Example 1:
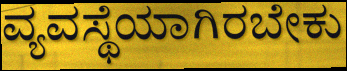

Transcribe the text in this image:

ವ್ಯವಸ್ಥೆಯಾಗಿರಬೇಕು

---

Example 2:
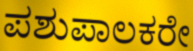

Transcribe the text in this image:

ಪಶುಪಾಲಕರೇ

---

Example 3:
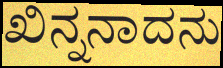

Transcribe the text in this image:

ಖಿನ್ನನಾದನು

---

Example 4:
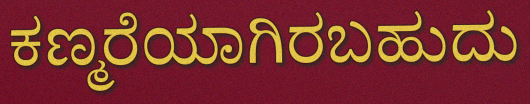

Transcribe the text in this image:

ಕಣ್ಮರೆಯಾಗಿರಬಹುದು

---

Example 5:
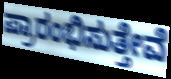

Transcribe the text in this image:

ಪ್ರಾರಂಭಿಸುತ್ತೇವೆ